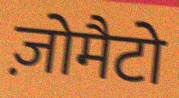
ज़ोमैटो